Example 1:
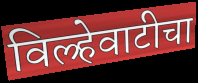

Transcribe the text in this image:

विल्हेवाटीचा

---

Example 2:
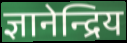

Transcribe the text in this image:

ज्ञानेन्द्रिय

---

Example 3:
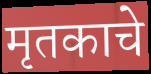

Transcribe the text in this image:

मृतकाचे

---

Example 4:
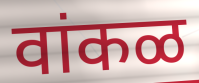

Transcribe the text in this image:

वांकळ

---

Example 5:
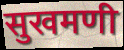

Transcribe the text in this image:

सुखमणी